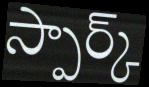
స్పార్క్